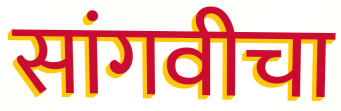
सांगवीचा